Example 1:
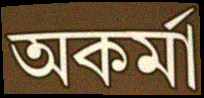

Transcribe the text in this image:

অকর্মা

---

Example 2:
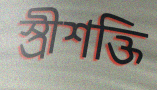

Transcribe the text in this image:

স্ত্রীশক্তি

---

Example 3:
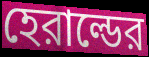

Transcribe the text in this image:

হেরাল্ডের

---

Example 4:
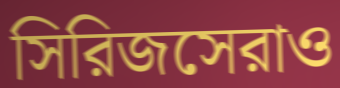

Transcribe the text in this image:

সিরিজসেরাও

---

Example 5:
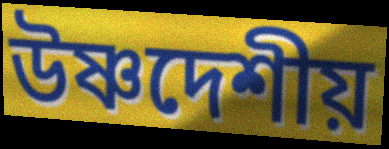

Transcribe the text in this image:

উষ্ণদেশীয়